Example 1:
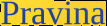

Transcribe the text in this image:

Pravina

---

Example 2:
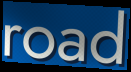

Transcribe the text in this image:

road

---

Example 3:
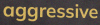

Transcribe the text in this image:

aggressive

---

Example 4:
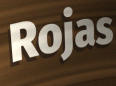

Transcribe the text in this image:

Rojas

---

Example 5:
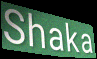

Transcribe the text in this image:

Shaka